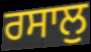
ਰਸਾਲੁ